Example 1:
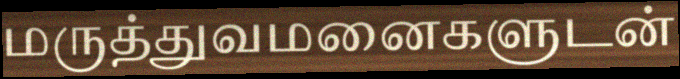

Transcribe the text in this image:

மருத்துவமனைகளுடன்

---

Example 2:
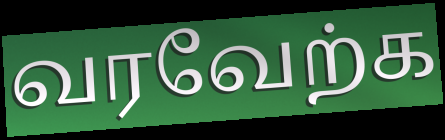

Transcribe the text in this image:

வரவேற்க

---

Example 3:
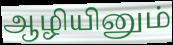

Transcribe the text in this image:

ஆழியினும்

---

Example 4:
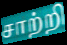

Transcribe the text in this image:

சாற்றி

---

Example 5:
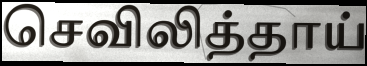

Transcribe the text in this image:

செவிலித்தாய்